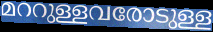
മററുള്ളവരോടുള്ള